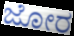
ಜೋರ